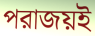
পরাজয়ই